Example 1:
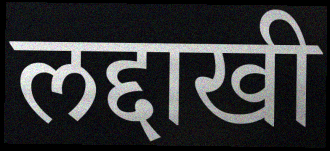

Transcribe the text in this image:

लद्दाखी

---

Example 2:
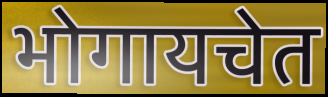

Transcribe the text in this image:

भोगायचेत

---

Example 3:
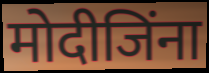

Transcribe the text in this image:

मोदीजिंना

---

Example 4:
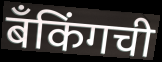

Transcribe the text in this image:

बँकिंगची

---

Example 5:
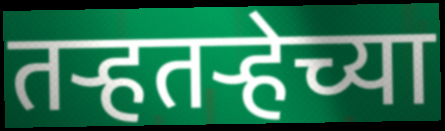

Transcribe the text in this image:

तऱ्हतऱ्हेच्या